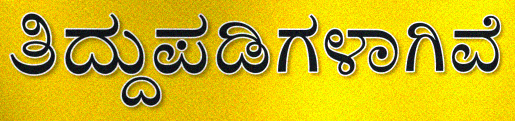
ತಿದ್ದುಪಡಿಗಳಾಗಿವೆ